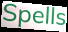
Spells